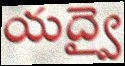
యద్వై